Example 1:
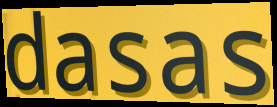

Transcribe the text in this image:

dasas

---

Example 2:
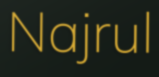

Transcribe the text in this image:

Najrul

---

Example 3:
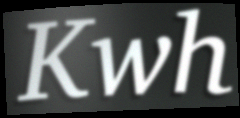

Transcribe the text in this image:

Kwh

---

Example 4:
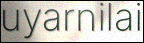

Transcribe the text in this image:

uyarnilai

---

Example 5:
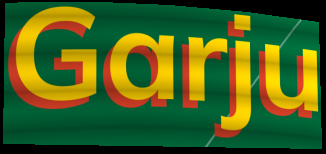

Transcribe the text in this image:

Garju